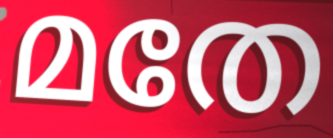
മതേ